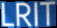
LRIT